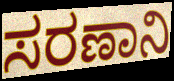
ಸರಣಾನಿ